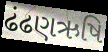
ઢંઢણઋષિ